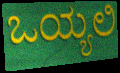
ಒಯ್ಯಲಿ